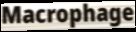
Macrophage